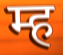
म्ह